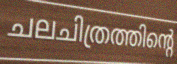
ചലചിത്രത്തിന്റെ